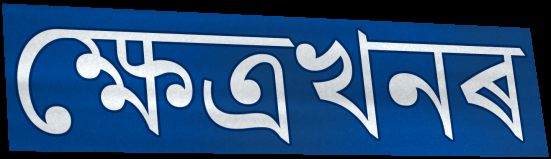
ক্ষেত্ৰখনৰ